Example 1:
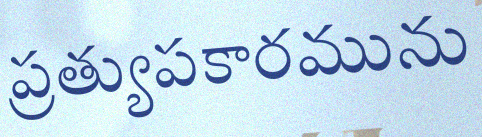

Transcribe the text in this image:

ప్రత్యుపకారమును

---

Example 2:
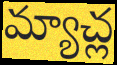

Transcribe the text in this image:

మ్యాచ్ల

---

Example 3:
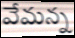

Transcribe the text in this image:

వేమన్న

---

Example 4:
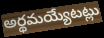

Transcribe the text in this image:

అర్థమయ్యేటట్లు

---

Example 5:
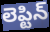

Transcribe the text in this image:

లెప్టిన్